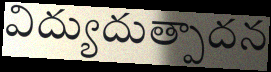
విద్యుదుత్పాదన